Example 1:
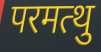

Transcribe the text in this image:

परमत्थु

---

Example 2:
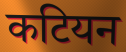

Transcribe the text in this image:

कटियन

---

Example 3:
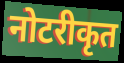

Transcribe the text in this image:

नोटरीकृत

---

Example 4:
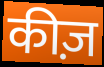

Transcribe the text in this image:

कीज़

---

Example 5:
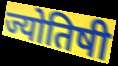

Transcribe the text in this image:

ज्योतिषी